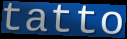
tatto